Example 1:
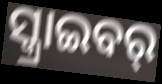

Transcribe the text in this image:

ସ୍କ୍ରାଇବର୍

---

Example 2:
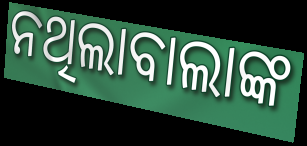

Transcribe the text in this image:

ନଥିଲାବାଲାଙ୍କ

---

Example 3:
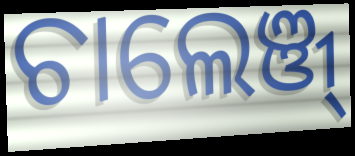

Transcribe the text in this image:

ଚାଲେଞ୍ଜ୍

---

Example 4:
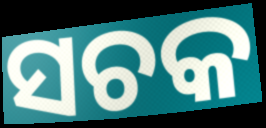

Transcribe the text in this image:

ସଚକ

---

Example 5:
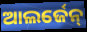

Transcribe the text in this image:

ଆଲର୍ଜେନ୍